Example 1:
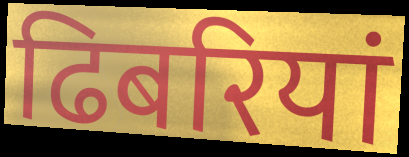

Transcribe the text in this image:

ढिबरियां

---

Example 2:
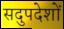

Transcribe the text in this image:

सदुपदेशों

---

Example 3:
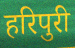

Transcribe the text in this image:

हरिपुरी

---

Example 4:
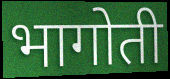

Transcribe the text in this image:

भागोती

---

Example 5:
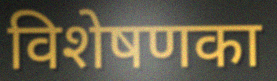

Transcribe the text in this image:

विशेषणका